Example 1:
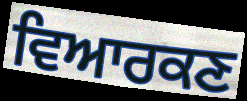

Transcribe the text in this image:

ਵਿਆਰਕਣ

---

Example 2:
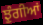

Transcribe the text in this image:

ਝੁੰਗੀਆਂ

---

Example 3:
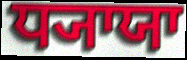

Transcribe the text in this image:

ਧ੍ਯਾਯਾ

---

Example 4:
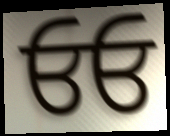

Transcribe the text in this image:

ਓਓ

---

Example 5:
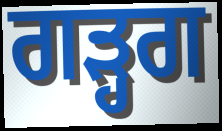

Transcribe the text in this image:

ਗੜ੍ਹਗ